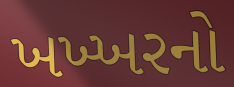
ખખ્ખરનો